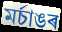
মৰ্চাঙৰ